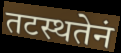
तटस्थतेनं